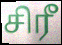
சிரீ